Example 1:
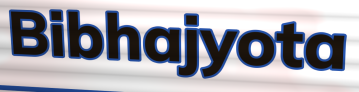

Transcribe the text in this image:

Bibhajyota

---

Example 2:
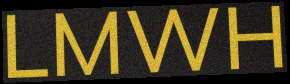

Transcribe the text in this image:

LMWH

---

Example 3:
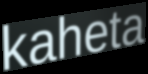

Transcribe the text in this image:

kaheta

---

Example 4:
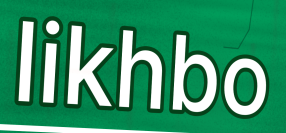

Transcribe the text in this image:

likhbo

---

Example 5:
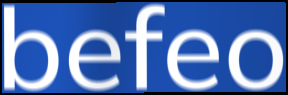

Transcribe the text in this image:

befeo